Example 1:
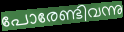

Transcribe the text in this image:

പോരേണ്ടിവന്നു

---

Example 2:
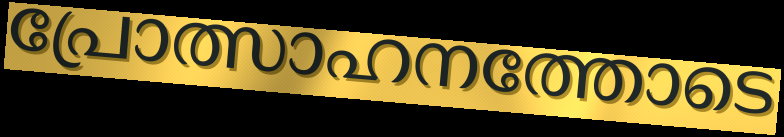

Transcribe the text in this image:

പ്രോത്സാഹനത്തോടെ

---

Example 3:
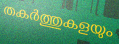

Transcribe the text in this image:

തകർത്തുകളയും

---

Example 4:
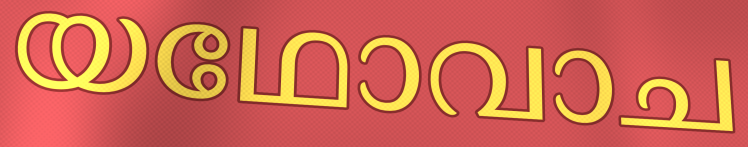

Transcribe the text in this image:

യഥോവാച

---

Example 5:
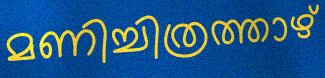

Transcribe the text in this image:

മണിച്ചിത്രത്താഴ്